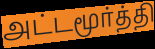
அட்டமூர்த்தி